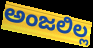
ಅಂಜಲಿಲ್ಲ